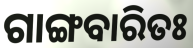
ଗାଙ୍ଗବାରିତଃ